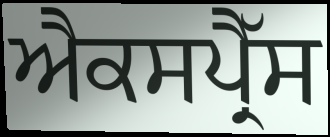
ਐਕਸਪ੍ਰੈੱਸ